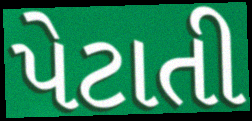
પેટાતી